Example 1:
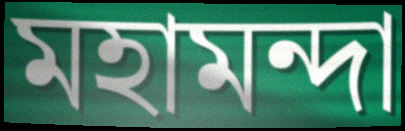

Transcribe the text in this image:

মহামন্দা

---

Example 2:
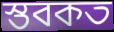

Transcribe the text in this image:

স্তবকত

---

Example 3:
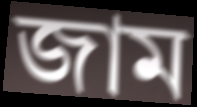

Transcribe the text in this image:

জাম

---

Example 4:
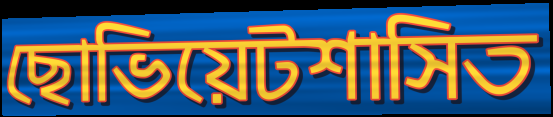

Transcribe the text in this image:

ছোভিয়েটশাসিত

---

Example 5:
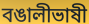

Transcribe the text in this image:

বঙালীভাষী